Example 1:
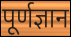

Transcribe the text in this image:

पूर्णज्ञान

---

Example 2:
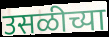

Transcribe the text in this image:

उसळीच्या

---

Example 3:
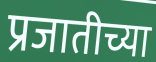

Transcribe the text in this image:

प्रजातीच्या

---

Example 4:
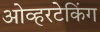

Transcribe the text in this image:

ओव्हरटेकिंग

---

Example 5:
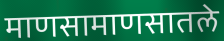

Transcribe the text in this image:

माणसामाणसातले